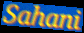
Sahani